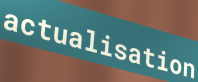
actualisation